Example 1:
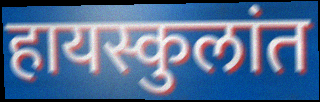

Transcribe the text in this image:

हायस्कुलांत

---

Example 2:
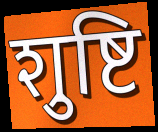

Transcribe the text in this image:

श्रुष्टि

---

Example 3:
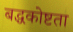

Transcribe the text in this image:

बद्धकोष्टता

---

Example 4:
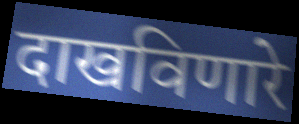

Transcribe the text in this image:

दाखविणारे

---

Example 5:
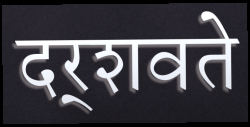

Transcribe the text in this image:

दर्शवते